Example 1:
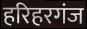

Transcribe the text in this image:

हरिहरगंज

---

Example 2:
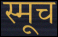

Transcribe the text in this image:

स्मूच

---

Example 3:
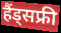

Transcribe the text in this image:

हैंड्सफ्री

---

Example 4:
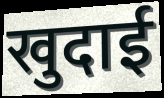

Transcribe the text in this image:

खुदाई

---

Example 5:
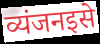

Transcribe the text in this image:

व्यंजनइसे